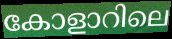
കോളാറിലെ